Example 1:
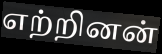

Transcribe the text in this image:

எற்றினன்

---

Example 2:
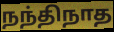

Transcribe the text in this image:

நந்திநாத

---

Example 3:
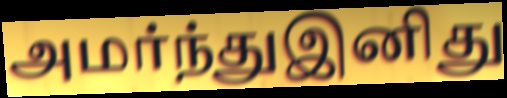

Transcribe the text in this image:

அமர்ந்துஇனிது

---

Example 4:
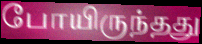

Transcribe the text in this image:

போயிருந்தது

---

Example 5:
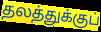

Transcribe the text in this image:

தலத்துக்குப்